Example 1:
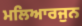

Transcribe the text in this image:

ਮਲਿਆਰਜੁਨ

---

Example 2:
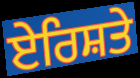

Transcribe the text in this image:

ਏਰਿਸ਼ਤੇ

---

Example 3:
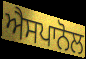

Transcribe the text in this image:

ਐਸਪਾਨੋਲ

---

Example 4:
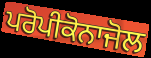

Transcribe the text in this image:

ਪਰੋਪੀਕੋਨਾਜੋਲ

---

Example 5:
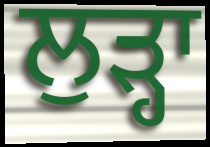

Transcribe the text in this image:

ਲੁੜ੍ਹਾ